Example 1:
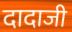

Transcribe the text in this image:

दादाजी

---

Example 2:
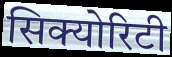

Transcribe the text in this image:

सिक्योरिटी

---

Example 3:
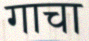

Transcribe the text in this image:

गाचा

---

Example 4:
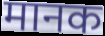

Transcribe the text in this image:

मानक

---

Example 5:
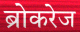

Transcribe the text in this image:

ब्रोकरेज